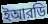
ইআরডি